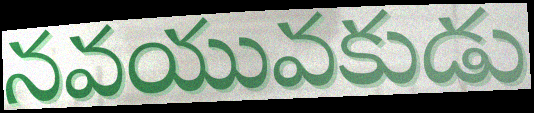
నవయువకుడు